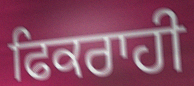
ਫਿਕਰਾਹੀ